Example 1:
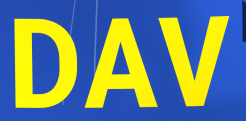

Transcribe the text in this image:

DAV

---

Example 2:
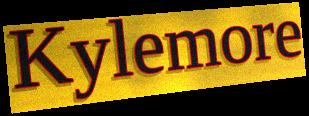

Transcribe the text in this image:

Kylemore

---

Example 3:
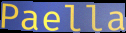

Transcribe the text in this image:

Paella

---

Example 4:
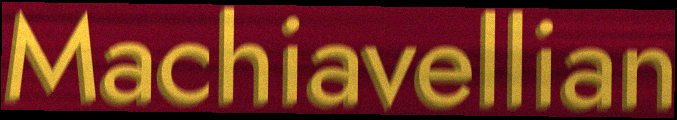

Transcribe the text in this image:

Machiavellian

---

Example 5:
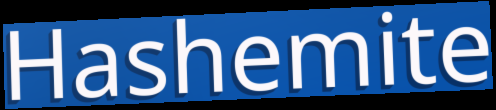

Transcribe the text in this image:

Hashemite